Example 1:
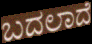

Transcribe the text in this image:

ಬದಲಾದೆ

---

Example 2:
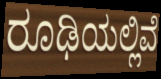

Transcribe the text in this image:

ರೂಢಿಯಲ್ಲಿವೆ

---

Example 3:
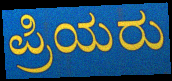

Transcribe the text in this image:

ಪ್ರಿಯರು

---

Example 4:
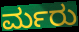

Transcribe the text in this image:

ರ್ಮರು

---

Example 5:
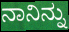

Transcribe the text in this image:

ನಾನಿನ್ನು